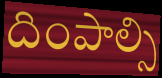
దింపాల్సి